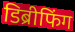
डिब्रीफिंग